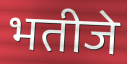
भतीजे